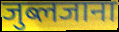
जुब्लजाना